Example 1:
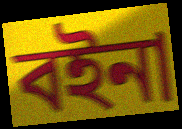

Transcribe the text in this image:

বইনা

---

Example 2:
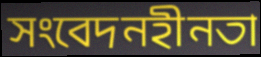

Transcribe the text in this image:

সংবেদনহীনতা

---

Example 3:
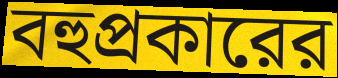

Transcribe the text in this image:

বহুপ্রকারের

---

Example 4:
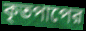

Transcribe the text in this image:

কৃতপাপের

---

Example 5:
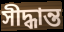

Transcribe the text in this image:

সীদ্ধান্ত